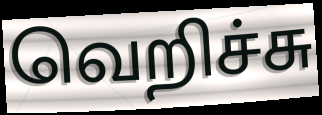
வெறிச்சு